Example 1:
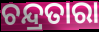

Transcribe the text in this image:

ଚନ୍ଦ୍ରତାରା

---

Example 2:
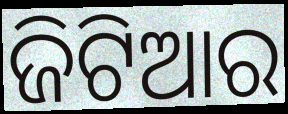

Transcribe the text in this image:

ଜିଟିଆର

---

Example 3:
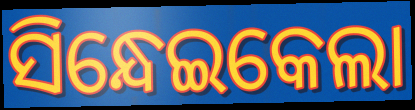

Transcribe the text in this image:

ସିନ୍ଧେଇକେଲା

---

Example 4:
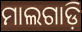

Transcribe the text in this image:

ମାଲଗାଡ଼ି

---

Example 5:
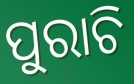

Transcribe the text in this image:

ପୁରାଚି